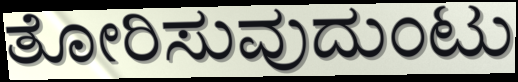
ತೋರಿಸುವುದುಂಟು